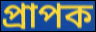
প্ৰাপক